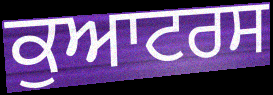
ਕੁਆਟਰਸ